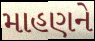
માહણને